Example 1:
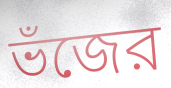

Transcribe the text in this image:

ভঁজের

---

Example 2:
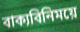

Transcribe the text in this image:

বাক্যবিনিময়ে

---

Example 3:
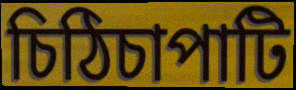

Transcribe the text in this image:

চিঠিচাপাটি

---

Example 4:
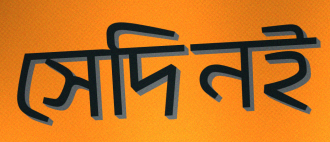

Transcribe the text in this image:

সেদিনই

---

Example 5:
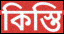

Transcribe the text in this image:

কিস্তি